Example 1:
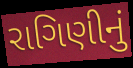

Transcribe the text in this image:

રાગિણીનું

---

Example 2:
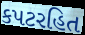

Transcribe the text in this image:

કપટરહિત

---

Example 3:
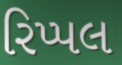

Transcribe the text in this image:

રિપ્પલ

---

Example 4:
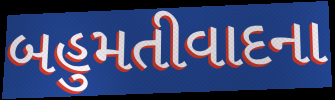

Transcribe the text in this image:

બહુમતીવાદના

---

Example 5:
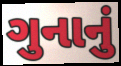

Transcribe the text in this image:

ગુનાનું